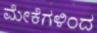
ಮೇಕೆಗಳಿಂದ